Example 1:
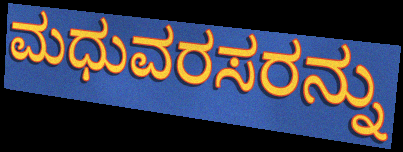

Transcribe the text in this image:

ಮಧುವರಸರನ್ನು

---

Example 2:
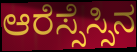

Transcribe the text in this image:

ಆರೆಸ್ಸೆಸ್ಸಿನ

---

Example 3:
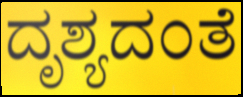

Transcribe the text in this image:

ದೃಶ್ಯದಂತೆ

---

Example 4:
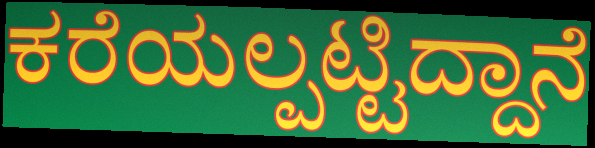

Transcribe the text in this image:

ಕರೆಯಲ್ಪಟ್ಟಿದ್ದಾನೆ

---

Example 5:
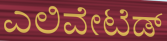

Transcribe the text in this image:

ಎಲಿವೇಟೆಡ್